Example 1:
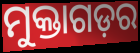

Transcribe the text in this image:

ମୁକ୍ତାଗଡ଼ର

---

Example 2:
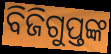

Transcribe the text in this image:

ବିଜିଗୁପ୍ତଙ୍କ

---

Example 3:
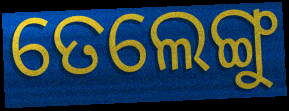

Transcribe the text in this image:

ତେଲେଙ୍ଗୁ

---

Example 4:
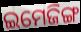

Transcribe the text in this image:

ଇମେଜିଙ୍ଗ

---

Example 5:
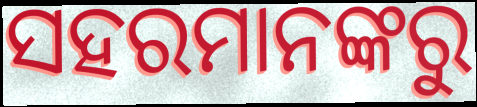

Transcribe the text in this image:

ସହରମାନଙ୍କରୁ